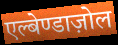
एल्बेण्डाज़ोल